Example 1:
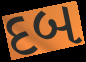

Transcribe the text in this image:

દબ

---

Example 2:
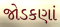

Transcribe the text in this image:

જોડકણાં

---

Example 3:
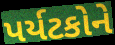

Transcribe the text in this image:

પર્યટકોને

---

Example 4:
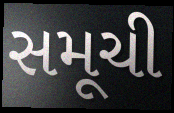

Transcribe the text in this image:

સમૂચી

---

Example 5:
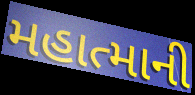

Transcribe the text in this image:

મહાત્માની